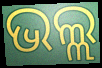
ଭଲ୍ଲ